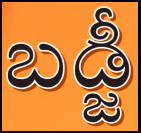
బడ్జీ